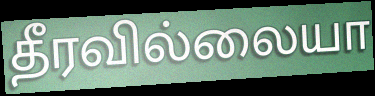
தீரவில்லையா